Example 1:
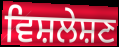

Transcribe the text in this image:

ਵਿਸ਼ਲੇਸ਼ਣ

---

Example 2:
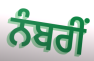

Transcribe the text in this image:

ਨੰਬਰੀਂ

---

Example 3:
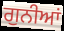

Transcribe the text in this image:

ਗੁਨੀਆਂ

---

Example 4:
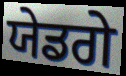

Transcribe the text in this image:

ਯੇਡਗੇ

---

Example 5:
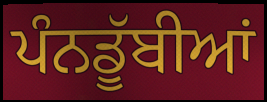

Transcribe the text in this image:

ਪੰਨਡੂੱਬੀਆਂ